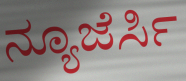
ನ್ಯೂಜೆರ್ಸಿ